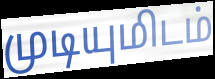
முடியுமிடம்